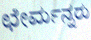
ಛೇರ್ಮನ್ನರು